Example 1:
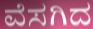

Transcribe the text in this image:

ವೆಸಗಿದ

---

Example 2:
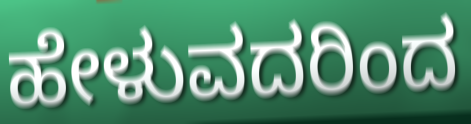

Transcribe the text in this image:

ಹೇಳುವದರಿಂದ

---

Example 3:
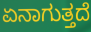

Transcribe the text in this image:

ಏನಾಗುತ್ತದೆ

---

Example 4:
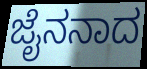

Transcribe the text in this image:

ಜೈನನಾದ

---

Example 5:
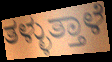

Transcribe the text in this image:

ತಳ್ಳುತ್ತಾಳೆ